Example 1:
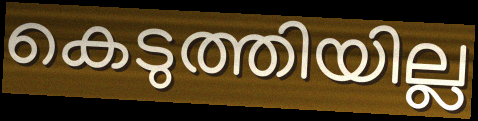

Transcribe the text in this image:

കെടുത്തിയില്ല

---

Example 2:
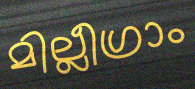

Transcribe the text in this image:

മില്ലീഗ്രാം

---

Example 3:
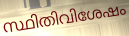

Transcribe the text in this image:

സ്ഥിതിവിശേഷം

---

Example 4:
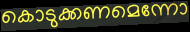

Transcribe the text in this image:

കൊടുക്കണമെന്നോ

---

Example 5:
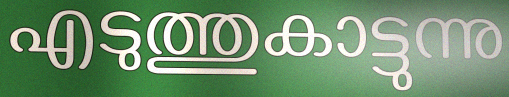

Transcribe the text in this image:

എടുത്തുകാട്ടുന്നു